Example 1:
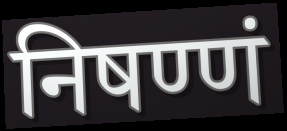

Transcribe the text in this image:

निषण्णं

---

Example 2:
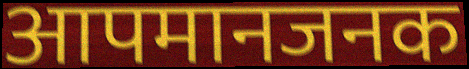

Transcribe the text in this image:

आपमानजनक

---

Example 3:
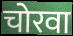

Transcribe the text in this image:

चोरवा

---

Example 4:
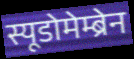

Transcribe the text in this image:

स्यूडोमेम्ब्रेन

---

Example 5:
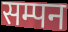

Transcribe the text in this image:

सम्पन